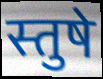
स्तुषे